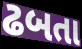
ઢબતા